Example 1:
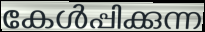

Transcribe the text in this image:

കേൾപ്പിക്കുന്ന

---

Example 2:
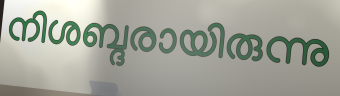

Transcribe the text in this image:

നിശബ്ദരായിരുന്നു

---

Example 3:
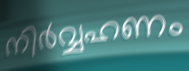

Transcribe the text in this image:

നിർവ്വഹണം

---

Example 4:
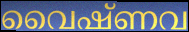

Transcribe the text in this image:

വൈഷ്ണവ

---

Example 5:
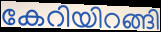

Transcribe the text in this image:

കേറിയിറങ്ങി